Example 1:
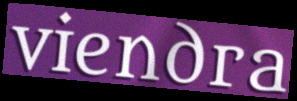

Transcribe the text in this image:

viendra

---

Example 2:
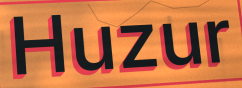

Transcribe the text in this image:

Huzur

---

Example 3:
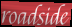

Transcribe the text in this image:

roadside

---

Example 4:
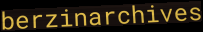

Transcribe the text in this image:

berzinarchives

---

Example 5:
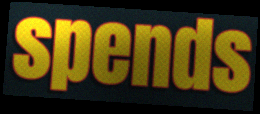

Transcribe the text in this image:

spends